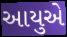
આયુએ